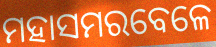
ମହାସମରବେଳେ